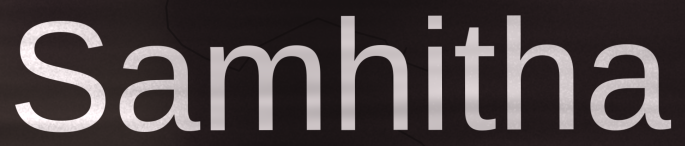
Samhitha